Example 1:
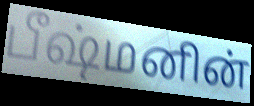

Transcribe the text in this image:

பீஷ்மனின்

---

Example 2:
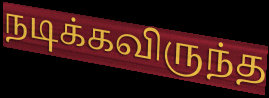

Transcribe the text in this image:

நடிக்கவிருந்த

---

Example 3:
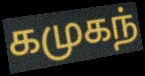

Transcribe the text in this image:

கமுகந்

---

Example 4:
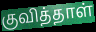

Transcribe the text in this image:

குவித்தாள்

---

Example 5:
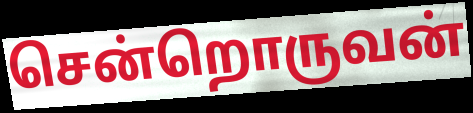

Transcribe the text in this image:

சென்றொருவன்